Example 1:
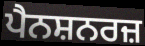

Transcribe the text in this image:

ਪੈਨਸ਼ਨਰਜ਼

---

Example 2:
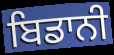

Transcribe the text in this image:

ਬਿਡਾਨੀ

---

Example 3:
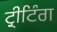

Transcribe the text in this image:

ਟ੍ਰੀਟਿੰਗ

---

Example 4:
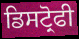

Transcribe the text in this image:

ਡਿਸਟ੍ਰੋਫੀ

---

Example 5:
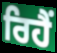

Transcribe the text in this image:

ਰਿਹੈਂ